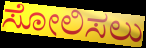
ಸೋಲಿಸಲು